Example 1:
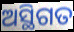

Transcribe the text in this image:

ଅସ୍ଥିଗତ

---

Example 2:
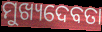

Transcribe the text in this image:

ମୁଖ୍ୟଦେବତା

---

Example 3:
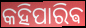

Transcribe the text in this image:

କହିପାରିଵ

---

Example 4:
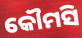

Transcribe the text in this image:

କୌମସି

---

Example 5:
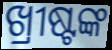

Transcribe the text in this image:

ଖ୍ରୀଷ୍ଟଙ୍କ